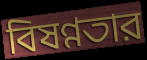
বিষণ্নতার